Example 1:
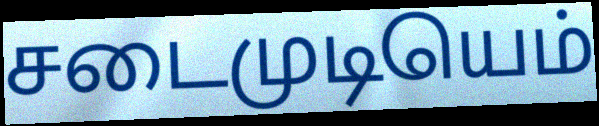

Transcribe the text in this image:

சடைமுடியெம்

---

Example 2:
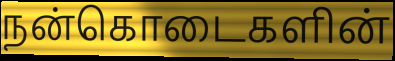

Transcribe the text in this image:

நன்கொடைகளின்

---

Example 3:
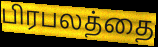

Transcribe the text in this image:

பிரபலத்தை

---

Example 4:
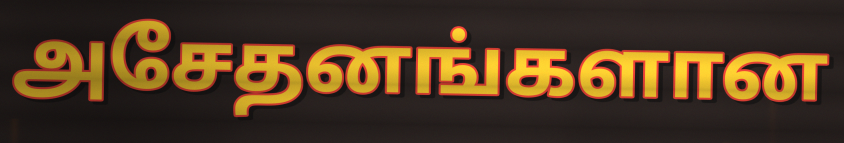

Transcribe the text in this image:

அசேதனங்களான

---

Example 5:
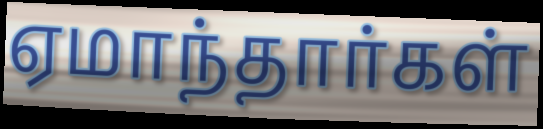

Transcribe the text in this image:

ஏமாந்தார்கள்